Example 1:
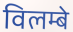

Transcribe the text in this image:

विलम्बे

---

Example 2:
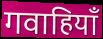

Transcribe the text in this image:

गवाहियाँ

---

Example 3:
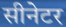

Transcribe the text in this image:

सीनेटर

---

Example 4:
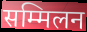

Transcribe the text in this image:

सम्मिलन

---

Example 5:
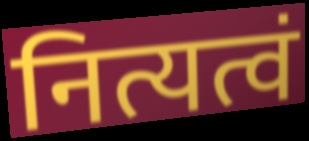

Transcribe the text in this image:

नित्यत्वं